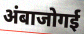
अंबाजोगई